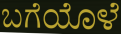
ಬಗೆಯೊಳೆ